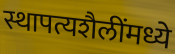
स्थापत्यशैलींमध्ये